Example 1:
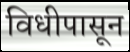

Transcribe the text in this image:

विधीपासून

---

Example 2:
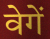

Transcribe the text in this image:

वेगें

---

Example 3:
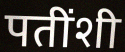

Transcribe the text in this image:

पतींशी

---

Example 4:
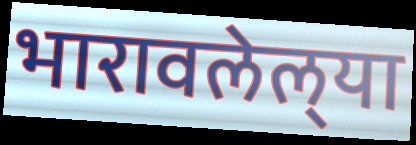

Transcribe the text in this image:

भारावलेल्या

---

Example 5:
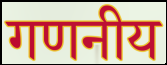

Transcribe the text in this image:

गणनीय